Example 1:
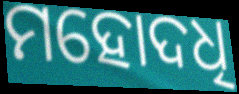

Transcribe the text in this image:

ମହୋଦଧି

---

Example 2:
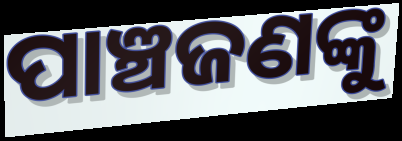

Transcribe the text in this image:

ପାଞ୍ଚଜଣଙ୍କୁ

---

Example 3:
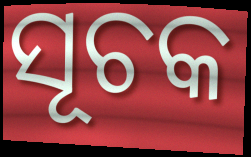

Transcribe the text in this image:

ସୂଚକ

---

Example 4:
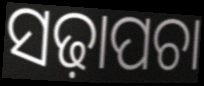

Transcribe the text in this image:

ସଢ଼ାପଚା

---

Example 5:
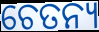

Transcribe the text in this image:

ଚେତନ୍ୟ